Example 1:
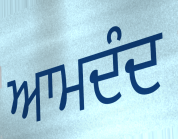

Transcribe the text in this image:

ਆਮਦੰਦ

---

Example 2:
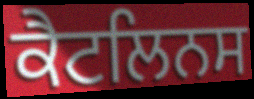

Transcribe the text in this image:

ਕੈਟਲਿਨਸ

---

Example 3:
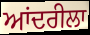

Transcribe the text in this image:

ਆਂਦਰੀਲਾ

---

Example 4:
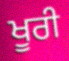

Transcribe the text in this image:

ਖੂਰੀ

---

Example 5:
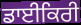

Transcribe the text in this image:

ਡਾਈਕਿਰੀ